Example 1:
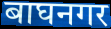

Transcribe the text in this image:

बाघनगर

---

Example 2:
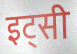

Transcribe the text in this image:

इट्सी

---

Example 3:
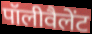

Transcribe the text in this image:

पॉलीवैलेंट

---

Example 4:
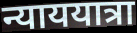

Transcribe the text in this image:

न्याययात्रा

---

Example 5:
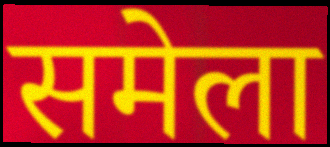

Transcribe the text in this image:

समेला